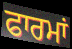
ਫਾਰਮਾਂ